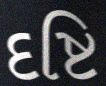
દષ્ટિ